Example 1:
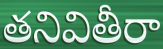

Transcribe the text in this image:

తనివితీరా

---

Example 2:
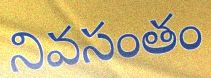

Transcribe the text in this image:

నివసంతం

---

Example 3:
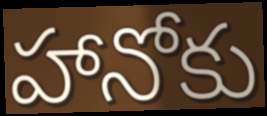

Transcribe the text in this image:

హానోకు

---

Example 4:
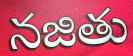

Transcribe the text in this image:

నజితు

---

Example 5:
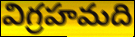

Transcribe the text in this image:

విగ్రహమది